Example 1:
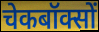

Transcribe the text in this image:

चेकबॉक्सों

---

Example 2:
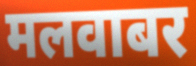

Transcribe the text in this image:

मलवाबर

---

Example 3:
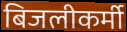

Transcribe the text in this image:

बिजलीकर्मी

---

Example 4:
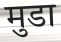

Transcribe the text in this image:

मुडा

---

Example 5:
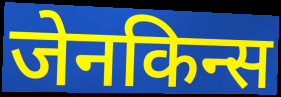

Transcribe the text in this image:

जेनकिन्स